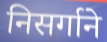
निसर्गाने